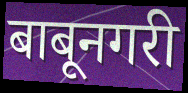
बाबूनगरी